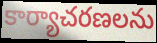
కార్యాచరణలను